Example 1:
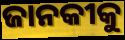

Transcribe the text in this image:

ଜାନକୀକୁ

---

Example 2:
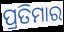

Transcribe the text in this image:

ପ୍ରତିମାର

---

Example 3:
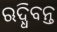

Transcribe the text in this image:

ଋଦ୍ଧିବନ୍ତ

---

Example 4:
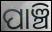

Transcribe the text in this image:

ପାଞ୍ଚି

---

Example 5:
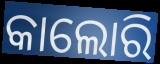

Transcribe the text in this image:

କାଲୋରି